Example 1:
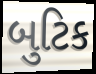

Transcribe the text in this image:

બુટિક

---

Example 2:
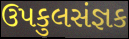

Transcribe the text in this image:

ઉપકુલસંજ્ઞક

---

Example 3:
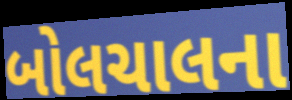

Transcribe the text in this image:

બોલચાલના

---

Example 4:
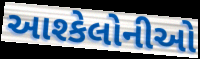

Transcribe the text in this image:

આશ્કેલોનીઓ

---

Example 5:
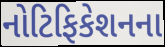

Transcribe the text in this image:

નોટિફિકેશનના